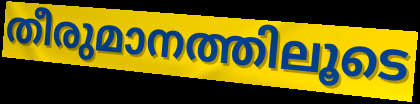
തീരുമാനത്തിലൂടെ